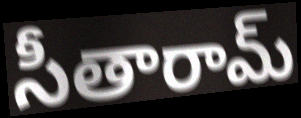
సీతారామ్